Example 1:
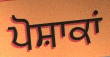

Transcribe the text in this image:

ਪੋਸ਼ਾਕਾਂ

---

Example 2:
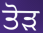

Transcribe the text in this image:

ਤੋੜ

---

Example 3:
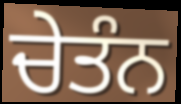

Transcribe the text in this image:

ਚੇਤੰਨ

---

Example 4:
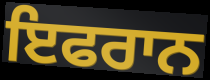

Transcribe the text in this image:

ਇਫਰਾਨ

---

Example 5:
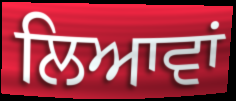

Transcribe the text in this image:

ਲਿਆਵਾਂ